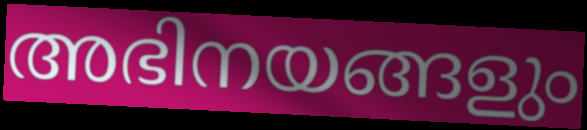
അഭിനയങ്ങളും